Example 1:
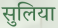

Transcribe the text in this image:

सुलिया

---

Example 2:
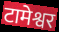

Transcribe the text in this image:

टामेश्वर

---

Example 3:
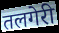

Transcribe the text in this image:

तलगेरी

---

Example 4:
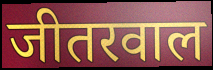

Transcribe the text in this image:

जीतरवाल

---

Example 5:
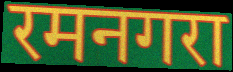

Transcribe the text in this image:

रमनगरा